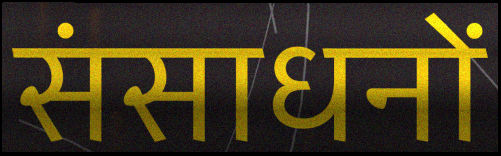
संसाधनों